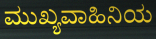
ಮುಖ್ಯವಾಹಿನಿಯ